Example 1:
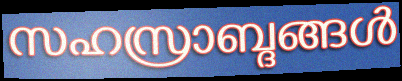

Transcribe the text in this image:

സഹസ്രാബ്ദങ്ങൾ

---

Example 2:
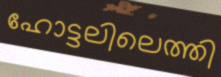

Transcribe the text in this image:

ഹോട്ടലിലെത്തി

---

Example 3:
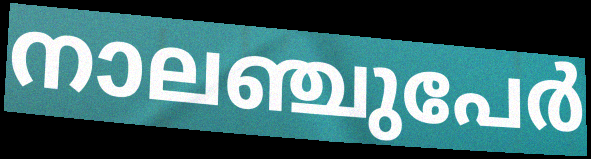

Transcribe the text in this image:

നാലഞ്ചുപേർ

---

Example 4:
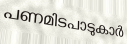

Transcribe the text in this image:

പണമിടപാടുകാർ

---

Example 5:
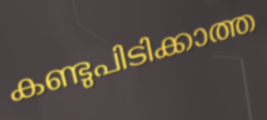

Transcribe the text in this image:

കണ്ടുപിടിക്കാത്ത